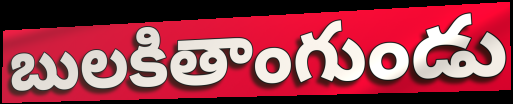
బులకితాంగుండు